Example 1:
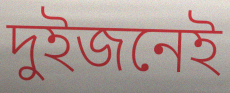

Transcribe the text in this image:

দুইজনেই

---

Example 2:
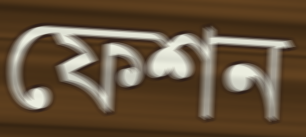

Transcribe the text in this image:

ফেশন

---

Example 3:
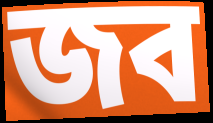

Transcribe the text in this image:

জব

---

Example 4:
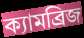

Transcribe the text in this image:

ক্যামব্রিজ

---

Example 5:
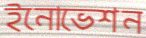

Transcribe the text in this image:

ইনোভেশন